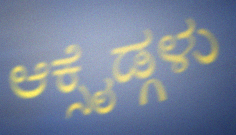
ಆಕ್ಸೈಡ್ಗಳು